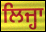
ਲਿਜ੍ਹਾ